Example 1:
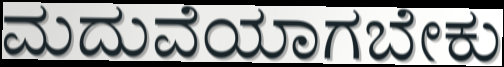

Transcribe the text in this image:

ಮದುವೆಯಾಗಬೇಕು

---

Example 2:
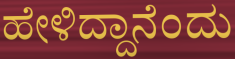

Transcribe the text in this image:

ಹೇಳಿದ್ದಾನೆಂದು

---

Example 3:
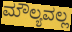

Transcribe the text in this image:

ಮೌಲ್ಯವಲ್ಲ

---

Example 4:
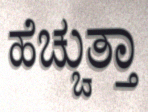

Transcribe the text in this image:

ಹೆಚ್ಚುತ್ತಾ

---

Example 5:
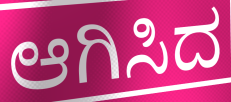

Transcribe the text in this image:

ಆಗಿಸಿದ